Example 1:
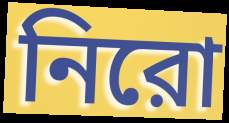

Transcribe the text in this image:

নিরো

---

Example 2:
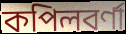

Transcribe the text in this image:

কপিলবর্ণা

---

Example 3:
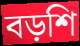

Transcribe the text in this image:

বড়শি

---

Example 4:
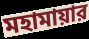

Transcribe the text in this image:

মহামায়ার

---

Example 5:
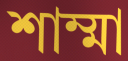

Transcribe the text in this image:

শাম্মা